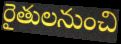
రైతులనుంచి